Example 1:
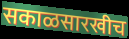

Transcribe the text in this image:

सकाळसारखीच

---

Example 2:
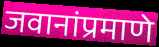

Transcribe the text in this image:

जवानांप्रमाणे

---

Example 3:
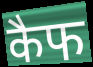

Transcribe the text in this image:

कैफ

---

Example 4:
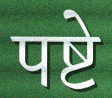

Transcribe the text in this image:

पष्टे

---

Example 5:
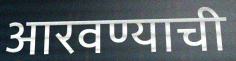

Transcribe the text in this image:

आरवण्याची